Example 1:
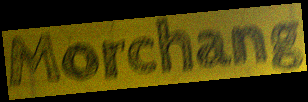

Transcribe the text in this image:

Morchang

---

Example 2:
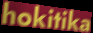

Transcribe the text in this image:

hokitika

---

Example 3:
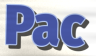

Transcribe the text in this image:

Pac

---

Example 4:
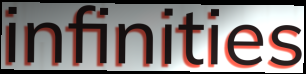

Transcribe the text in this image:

infinities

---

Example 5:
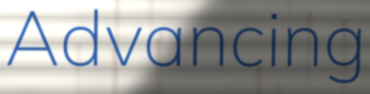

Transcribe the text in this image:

Advancing